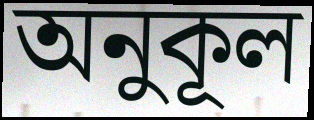
অনুকূল